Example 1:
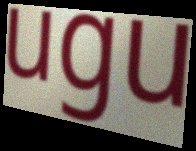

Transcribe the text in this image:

ugu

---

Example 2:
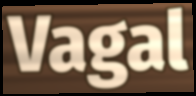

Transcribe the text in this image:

Vagal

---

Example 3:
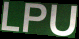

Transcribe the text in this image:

LPU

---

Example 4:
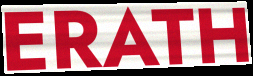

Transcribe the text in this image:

ERATH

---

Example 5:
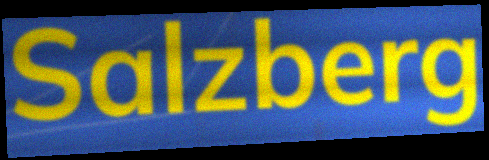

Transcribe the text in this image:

Salzberg